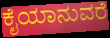
ಕೈಯಾನುವರೆ